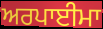
ਅਰਪਾਈਮਾ